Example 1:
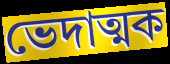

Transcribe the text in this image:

ভেদাত্মক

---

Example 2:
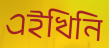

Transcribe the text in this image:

এইখিনি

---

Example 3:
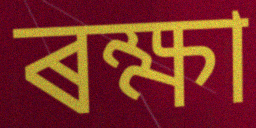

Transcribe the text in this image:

ৰক্ষা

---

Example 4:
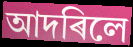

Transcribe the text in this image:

আদৰিলে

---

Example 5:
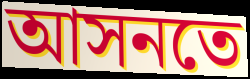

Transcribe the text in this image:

আসনতে